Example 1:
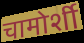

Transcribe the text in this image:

चामोर्शी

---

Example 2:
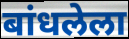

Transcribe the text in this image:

बांधलेला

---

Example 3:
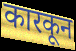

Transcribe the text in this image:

कारकून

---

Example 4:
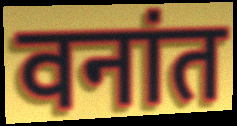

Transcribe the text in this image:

वनांत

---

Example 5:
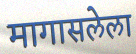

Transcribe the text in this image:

मागासलेला